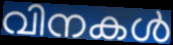
വിനകൾ